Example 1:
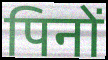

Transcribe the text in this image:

पिनों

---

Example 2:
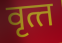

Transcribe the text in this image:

वृत्‍त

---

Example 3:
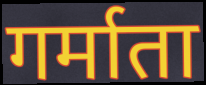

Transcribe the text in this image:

गर्माता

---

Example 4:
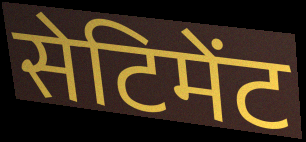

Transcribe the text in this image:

सेटिमेंट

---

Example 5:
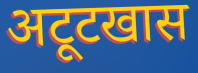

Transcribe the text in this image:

अटूटखास